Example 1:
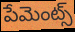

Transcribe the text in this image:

పేమెంట్స్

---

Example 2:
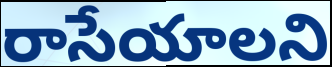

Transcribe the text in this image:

రాసేయాలని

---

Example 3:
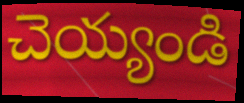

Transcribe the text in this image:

చెయ్యండి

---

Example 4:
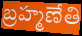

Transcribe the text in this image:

బ్రహ్మణేతి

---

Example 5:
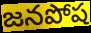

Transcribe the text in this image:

జనపోష